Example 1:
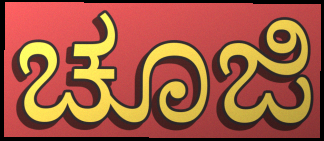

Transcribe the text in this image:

ಚೂಜಿ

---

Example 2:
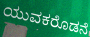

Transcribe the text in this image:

ಯುವಕರೊಡನೆ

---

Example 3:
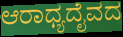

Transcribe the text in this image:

ಆರಾಧ್ಯದೈವದ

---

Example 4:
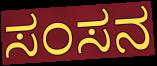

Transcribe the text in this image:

ಸಂಸನ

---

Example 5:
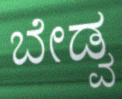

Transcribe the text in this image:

ಬೇಡ್ವ